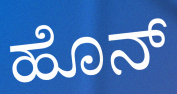
ಹೊನ್